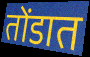
तोंडात